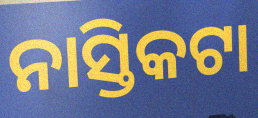
ନାସ୍ତିକଟା